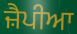
ਜ਼ੈਪੀਆ